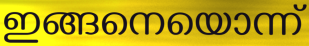
ഇങ്ങനെയൊന്ന്